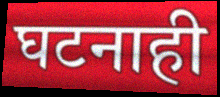
घटनाही